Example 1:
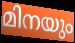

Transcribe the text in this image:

മിനയും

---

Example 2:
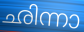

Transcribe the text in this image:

ഛിന്നാ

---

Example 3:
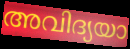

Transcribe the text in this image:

അവിദ്യയാ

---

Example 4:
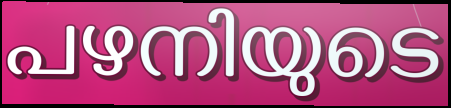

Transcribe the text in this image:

പഴനിയുടെ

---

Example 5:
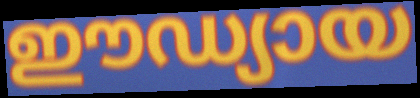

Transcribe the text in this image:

ഈഡ്യായ